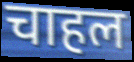
चाहल